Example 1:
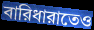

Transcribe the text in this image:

বারিধারাতেও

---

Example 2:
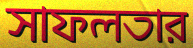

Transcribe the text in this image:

সাফলতার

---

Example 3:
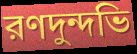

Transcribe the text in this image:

রণদুন্দভি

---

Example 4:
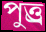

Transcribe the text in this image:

পুত্ত্র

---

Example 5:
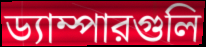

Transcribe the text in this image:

ড্যাম্পারগুলি